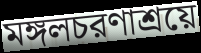
মঙ্গলচরণাশ্রয়ে